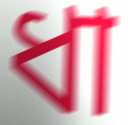
ধা